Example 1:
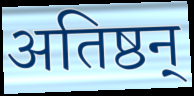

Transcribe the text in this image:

अतिष्ठन्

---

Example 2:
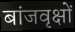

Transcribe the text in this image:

बांजवृक्षों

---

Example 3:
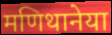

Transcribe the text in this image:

मणिथानेया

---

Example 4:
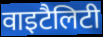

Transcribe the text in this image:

वाइटैलिटी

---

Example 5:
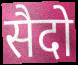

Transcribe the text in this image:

सैदो